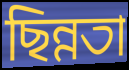
ছিন্নতা